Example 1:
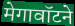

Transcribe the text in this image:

मेगावॉटने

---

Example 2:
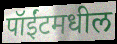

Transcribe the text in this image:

पॉईंटमधील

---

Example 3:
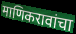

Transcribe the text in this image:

माणिकरावांचा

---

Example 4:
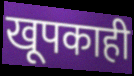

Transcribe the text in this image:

खूपकाही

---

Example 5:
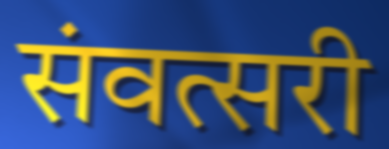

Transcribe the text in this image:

संवत्सरी